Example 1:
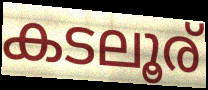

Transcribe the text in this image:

കടലൂര്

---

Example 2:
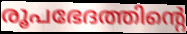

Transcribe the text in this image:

രൂപഭേദത്തിന്റെ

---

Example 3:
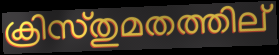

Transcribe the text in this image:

ക്രിസ്തുമതത്തില്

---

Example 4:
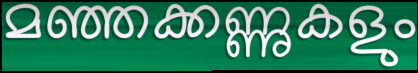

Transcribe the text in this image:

മഞ്ഞക്കണ്ണുകളും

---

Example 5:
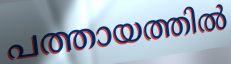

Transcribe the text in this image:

പത്തായത്തിൽ